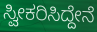
ಸ್ವೀಕರಿಸಿದ್ದೇನೆ